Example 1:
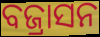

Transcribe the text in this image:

ବଜ୍ରାସନ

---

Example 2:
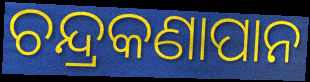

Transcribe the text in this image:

ଚନ୍ଦ୍ରକଣାପାନ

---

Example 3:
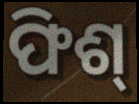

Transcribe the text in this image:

ଫିଶ୍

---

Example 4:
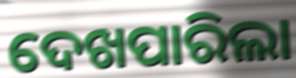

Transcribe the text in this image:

ଦେଖପାରିଲା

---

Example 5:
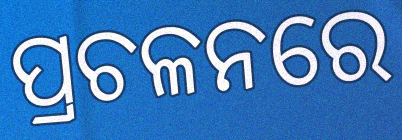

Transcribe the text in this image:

ପ୍ରଚଳନରେ